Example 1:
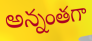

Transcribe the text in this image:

అన్నంతగా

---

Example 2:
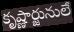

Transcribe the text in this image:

కృష్ణార్జునులే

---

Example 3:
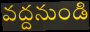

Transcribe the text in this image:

వద్దనుండి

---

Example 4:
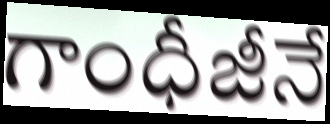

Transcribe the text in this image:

గాంధీజీనే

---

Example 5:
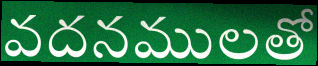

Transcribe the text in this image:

వదనములతో